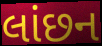
લાંછન